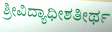
ಶ್ರೀವಿದ್ಯಾಧೀಶತೀರ್ಥ